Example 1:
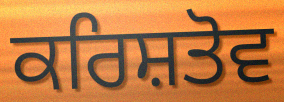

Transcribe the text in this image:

ਕਰਿਸ਼ਤੋਵ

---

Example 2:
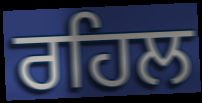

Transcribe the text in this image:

ਰਹਿਲ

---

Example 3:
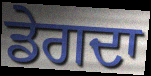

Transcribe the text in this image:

ਡੇਗਦਾ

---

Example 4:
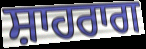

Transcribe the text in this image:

ਸ਼ਾਹਰਾਗ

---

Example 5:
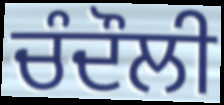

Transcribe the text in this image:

ਚੰਦੌਲੀ